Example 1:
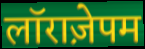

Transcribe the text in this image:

लॉराज़ेपम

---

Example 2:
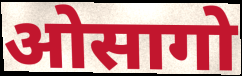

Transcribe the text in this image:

ओसागो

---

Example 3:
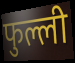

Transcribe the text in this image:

फुल्ली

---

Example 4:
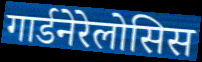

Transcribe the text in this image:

गार्डनेरेलोसिस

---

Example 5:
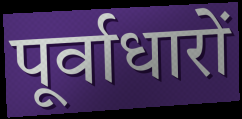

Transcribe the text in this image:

पूर्वाधारों